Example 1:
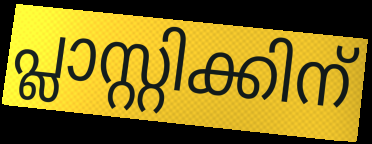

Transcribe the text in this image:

പ്ലാസ്റ്റിക്കിന്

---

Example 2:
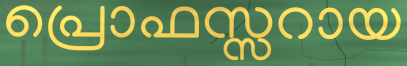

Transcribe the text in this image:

പ്രൊഫസ്സറായ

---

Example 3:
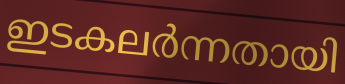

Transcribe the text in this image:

ഇടകലർന്നതായി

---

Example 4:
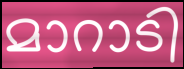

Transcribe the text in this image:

മാറാടി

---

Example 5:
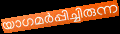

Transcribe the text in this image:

യാഗമർപ്പിച്ചിരുന്ന